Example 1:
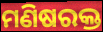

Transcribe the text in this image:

ମଣିଷରକ୍ତ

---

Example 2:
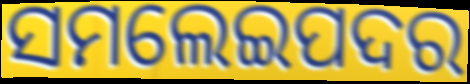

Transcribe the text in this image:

ସମଲେଇପଦର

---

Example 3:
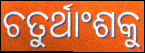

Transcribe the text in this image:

ଚତୁର୍ଥାଂଶକୁ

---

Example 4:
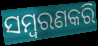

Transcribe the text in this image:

ସମ୍ବରଣକରି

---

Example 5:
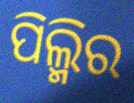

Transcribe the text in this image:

ପିଲ୍ମିର